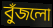
বুঁজলো